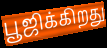
பூஜிக்கிறது